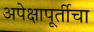
अपेक्षापूर्तीचा